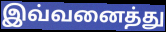
இவ்வனைத்து